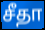
சீதா